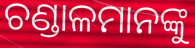
ଚଣ୍ଡାଳମାନଙ୍କୁ